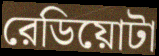
রেডিয়োটা